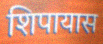
शिपायास